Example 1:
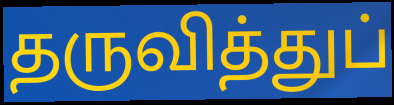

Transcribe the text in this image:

தருவித்துப்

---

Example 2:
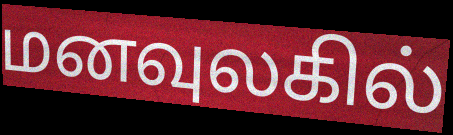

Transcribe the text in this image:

மனவுலகில்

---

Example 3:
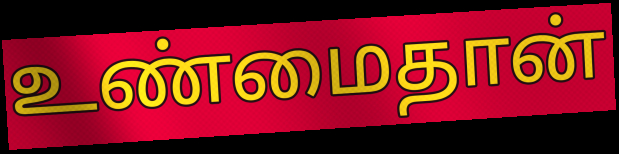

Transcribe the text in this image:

உண்மைதான்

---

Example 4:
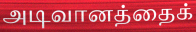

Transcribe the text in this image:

அடிவானத்தைக்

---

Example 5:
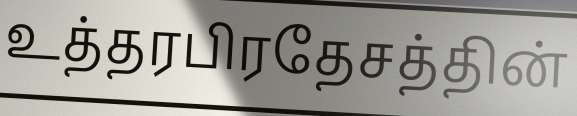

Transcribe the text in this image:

உத்தரபிரதேசத்தின்